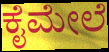
ಕೈಮೇಲೆ